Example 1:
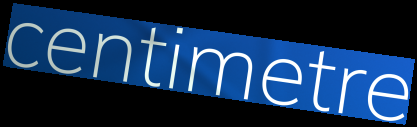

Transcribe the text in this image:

centimetre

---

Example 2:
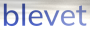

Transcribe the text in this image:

blevet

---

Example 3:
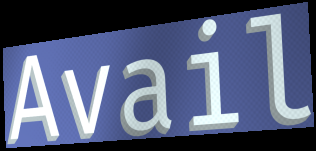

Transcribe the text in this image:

Avail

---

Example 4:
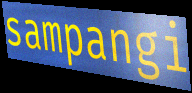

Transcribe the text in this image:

sampangi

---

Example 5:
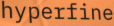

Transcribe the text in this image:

hyperfine